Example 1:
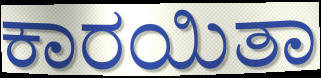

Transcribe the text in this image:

ಕಾರಯಿತಾ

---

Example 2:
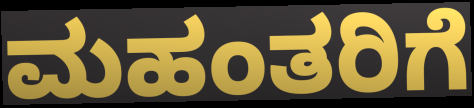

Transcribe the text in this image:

ಮಹಂತರಿಗೆ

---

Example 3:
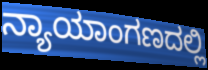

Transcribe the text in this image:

ನ್ಯಾಯಾಂಗಣದಲ್ಲಿ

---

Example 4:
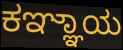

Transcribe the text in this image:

ಕಞ್ಞಾಯ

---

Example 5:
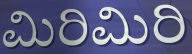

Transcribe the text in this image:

ಮಿರಿಮಿರಿ